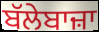
ਬੱਲੇਬਾਜ਼ਾ